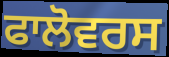
ਫਾਲੋਵਰਸ